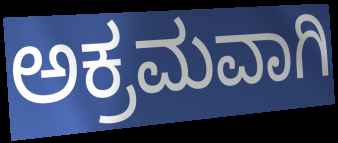
ಅಕ್ರಮವಾಗಿ